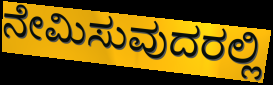
ನೇಮಿಸುವುದರಲ್ಲಿ